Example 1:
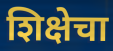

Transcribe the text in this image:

शिक्षेचा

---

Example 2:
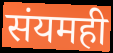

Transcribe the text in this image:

संयमही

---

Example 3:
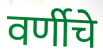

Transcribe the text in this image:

वर्णीचे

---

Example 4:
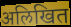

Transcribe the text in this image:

अलिखित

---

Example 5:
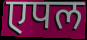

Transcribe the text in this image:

एपल